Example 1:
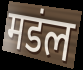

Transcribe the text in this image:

मडंल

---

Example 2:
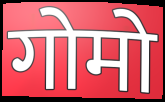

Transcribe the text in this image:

गोमो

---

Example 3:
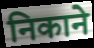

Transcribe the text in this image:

निकाने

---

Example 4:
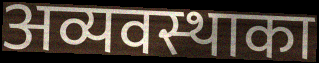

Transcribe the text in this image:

अव्यवस्थाका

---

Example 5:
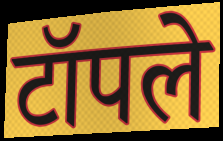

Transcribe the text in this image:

टॉपले